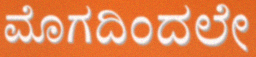
ಮೊಗದಿಂದಲೇ